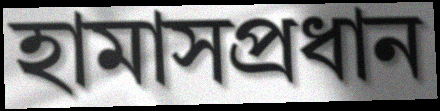
হামাসপ্রধান